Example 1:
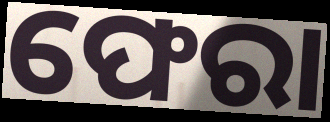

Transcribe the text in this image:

ଫେରା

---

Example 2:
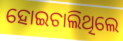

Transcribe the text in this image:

ହୋଇଚାଲିଥିଲେ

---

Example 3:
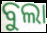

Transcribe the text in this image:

ବୁଲା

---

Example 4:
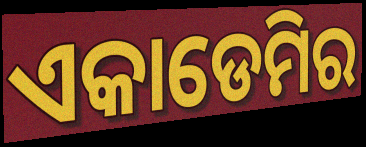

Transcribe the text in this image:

ଏକାଡେମିର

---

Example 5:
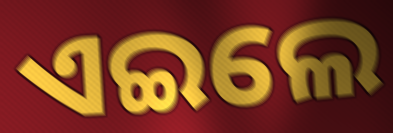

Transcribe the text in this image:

ଏଇଲେ